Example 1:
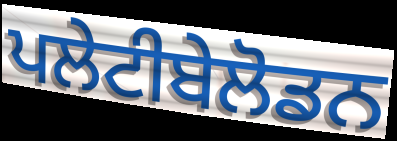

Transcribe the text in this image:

ਪਲੇਟੀਬੇਲੋਡਨ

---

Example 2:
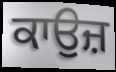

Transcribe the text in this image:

ਕਾਉਜ਼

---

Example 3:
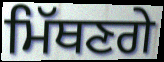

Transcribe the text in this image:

ਮਿੱਥਣਗੇ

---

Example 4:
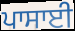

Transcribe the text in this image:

ਪਾਸਾਈ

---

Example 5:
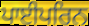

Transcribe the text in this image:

ਪਾਈਪਰਿਨ